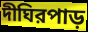
দীঘিরপাড়